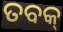
ତବକ୍